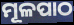
ମୂଳପାଠ